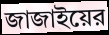
জাজাইয়ের